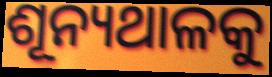
ଶୂନ୍ୟଥାଳକୁ